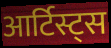
आर्टिस्ट्स